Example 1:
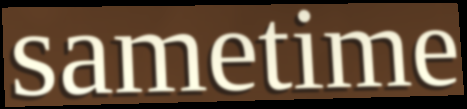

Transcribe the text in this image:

sametime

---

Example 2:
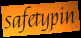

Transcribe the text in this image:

safetypin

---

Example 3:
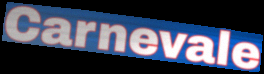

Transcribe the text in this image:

Carnevale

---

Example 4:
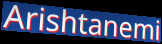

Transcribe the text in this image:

Arishtanemi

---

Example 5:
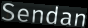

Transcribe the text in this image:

Sendan